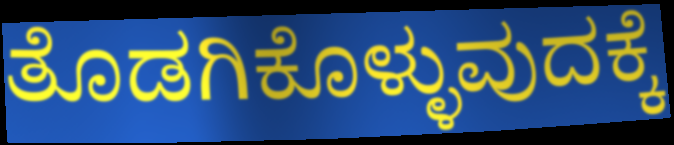
ತೊಡಗಿಕೊಳ್ಳುವುದಕ್ಕೆ